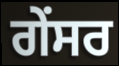
ਗੇਂਸਰ